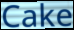
Cake